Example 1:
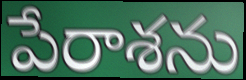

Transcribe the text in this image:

పేరాశను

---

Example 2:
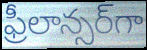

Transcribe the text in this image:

ఫ్రీలాన్సర్‌గా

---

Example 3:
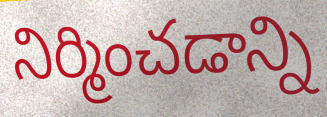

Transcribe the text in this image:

నిర్మించడాన్ని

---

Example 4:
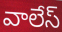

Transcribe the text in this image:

వాలేస్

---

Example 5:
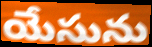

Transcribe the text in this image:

యేసును